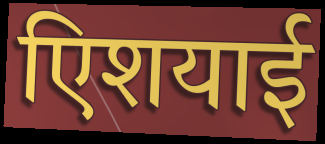
एिशयाई